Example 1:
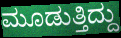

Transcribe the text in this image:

ಮೂಡುತ್ತಿದ್ದು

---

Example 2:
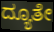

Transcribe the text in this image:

ದ್ಯೂತೇ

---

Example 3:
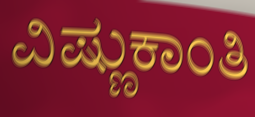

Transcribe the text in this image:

ವಿಷ್ಣುಕಾಂತಿ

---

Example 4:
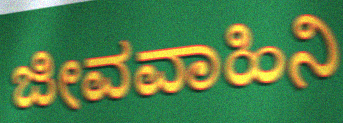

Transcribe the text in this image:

ಜೀವವಾಹಿನಿ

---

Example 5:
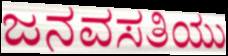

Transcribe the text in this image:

ಜನವಸತಿಯು